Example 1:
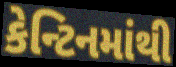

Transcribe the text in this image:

કેન્ટિનમાંથી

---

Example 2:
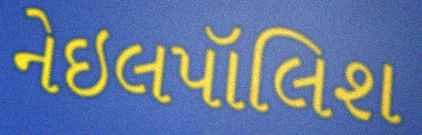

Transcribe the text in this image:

નેઇલપૉલિશ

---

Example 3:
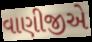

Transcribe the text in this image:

વાણીજીએ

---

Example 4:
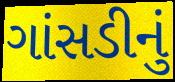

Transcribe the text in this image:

ગાંસડીનું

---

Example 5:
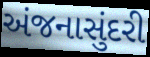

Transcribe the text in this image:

અંજનાસુંદરી